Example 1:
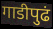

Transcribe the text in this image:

गाडीपुढं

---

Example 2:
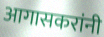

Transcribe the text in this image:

आगासकरांनी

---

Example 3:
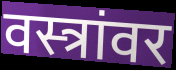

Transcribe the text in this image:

वस्त्रांवर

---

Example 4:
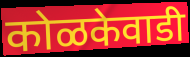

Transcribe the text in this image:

कोळकेवाडी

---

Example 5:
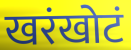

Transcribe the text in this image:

खरंखोटं